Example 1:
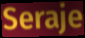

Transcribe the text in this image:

Seraje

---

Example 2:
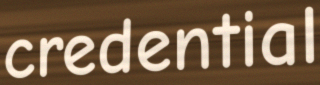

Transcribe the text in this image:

credential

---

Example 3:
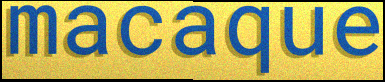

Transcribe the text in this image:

macaque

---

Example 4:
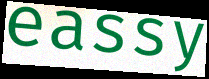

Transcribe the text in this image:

eassy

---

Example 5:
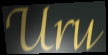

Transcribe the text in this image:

Uru